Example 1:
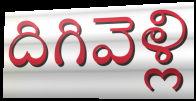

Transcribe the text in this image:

దిగివెళ్లి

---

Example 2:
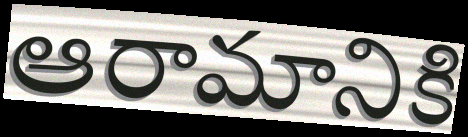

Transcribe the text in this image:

ఆరామానికి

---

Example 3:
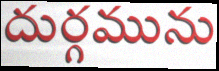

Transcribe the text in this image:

దుర్గమును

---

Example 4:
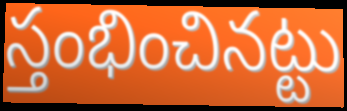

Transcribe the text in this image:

స్తంభించినట్టు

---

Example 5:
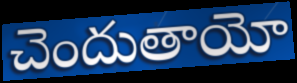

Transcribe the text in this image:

చెందుతాయో